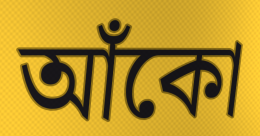
আঁকো